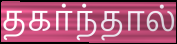
தகர்ந்தால்